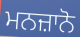
ਮਨਜ਼ਾਨੋ